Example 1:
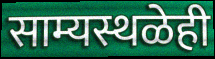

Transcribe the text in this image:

साम्यस्थळेही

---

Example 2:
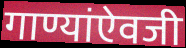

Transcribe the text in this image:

गाण्यांऐवजी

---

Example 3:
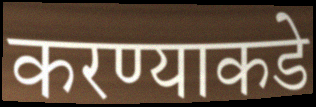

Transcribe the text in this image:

करण्याकडे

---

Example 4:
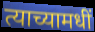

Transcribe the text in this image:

त्याच्यामधीं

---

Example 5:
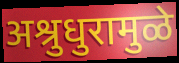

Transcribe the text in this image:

अश्रुधुरामुळे